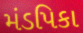
મંડપિકા